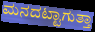
ಮನದಟ್ಟಾಗುತ್ತಾ